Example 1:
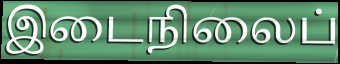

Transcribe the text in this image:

இடைநிலைப்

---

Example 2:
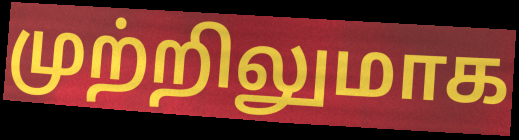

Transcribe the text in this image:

முற்றிலுமாக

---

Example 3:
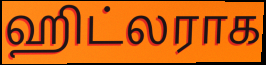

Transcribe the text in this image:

ஹிட்லராக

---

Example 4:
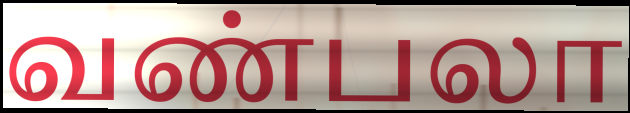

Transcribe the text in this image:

வண்பலா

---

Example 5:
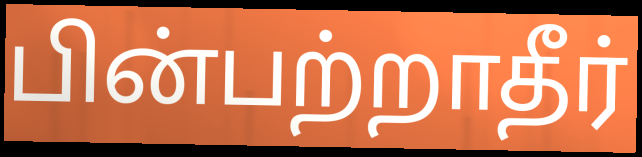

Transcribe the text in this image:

பின்பற்றாதீர்